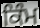
ਕਿੰਮ